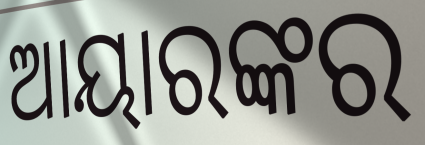
ଆୟାରଙ୍କର